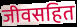
जीवसहित